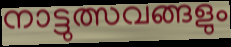
നാട്ടുത്സവങ്ങളും